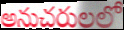
అనుచరులలో